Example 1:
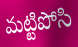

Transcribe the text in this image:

మట్టిపోసి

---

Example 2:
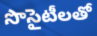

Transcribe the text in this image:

సొసైటీలతో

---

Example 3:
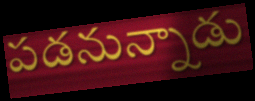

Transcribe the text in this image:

పడనున్నాడు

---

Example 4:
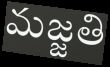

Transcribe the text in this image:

మజ్జతి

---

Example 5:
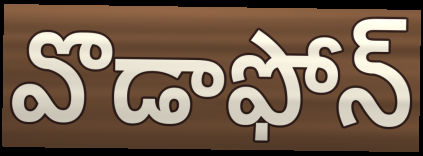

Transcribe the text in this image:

వొడాఫోన్